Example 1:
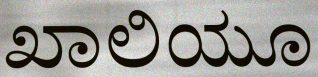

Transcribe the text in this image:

ಖಾಲಿಯೂ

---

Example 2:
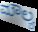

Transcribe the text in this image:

ಮೌಲ್ಯ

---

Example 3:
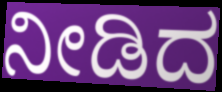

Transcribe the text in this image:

ನೀಡಿದ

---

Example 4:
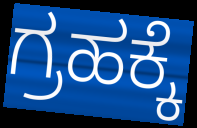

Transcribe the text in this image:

ಗ್ರಹಕ್ಕೆ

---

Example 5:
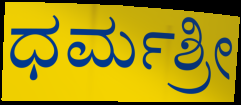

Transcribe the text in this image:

ಧರ್ಮಶ್ರೀ